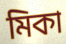
মিকা